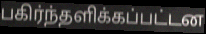
பகிர்ந்தளிக்கப்பட்டன